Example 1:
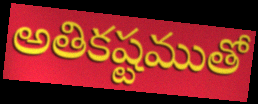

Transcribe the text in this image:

అతికష్టముతో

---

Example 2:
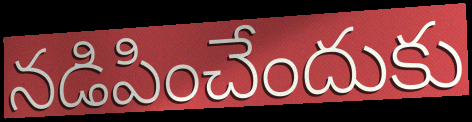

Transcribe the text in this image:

నడిపించేందుకు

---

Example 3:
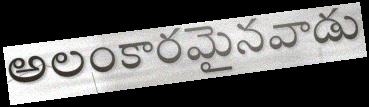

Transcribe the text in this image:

అలంకారమైనవాడు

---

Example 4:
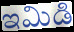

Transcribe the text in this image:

ఇమిడి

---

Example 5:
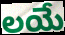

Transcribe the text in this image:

లయే